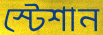
স্টেশান